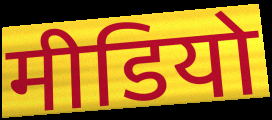
मीडियो